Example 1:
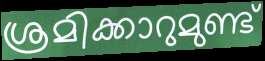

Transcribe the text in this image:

ശ്രമിക്കാറുമുണ്ട്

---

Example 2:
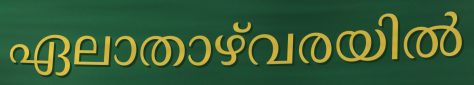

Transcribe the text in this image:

ഏലാതാഴ്‌വരയിൽ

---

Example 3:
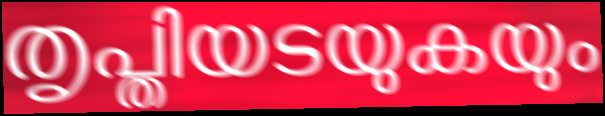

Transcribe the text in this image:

തൃപ്തിയടയുകയും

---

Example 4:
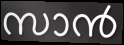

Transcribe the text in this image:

സാൻ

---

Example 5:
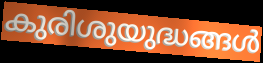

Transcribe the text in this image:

കുരിശുയുദ്ധങ്ങൾ